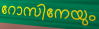
റോസിനേയും